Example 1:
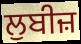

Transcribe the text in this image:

ਲੁਬੀਜ਼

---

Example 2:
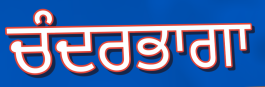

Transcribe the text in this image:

ਚੰਦਰਭਾਗਾ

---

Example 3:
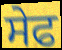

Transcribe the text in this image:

ਸੇਫ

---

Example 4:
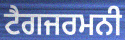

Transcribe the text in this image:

ਟੈਗਜਰਮਨੀ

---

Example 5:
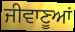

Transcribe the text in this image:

ਜੀਵਾਣੂਆਂ